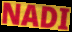
NADI